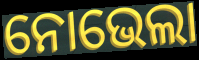
ନୋଭେଲା